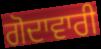
ਗੋਦਾਵਾਰੀ